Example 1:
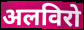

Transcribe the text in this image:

अलविरो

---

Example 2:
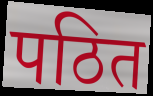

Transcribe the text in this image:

पठित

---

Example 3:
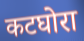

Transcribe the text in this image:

कटघोरा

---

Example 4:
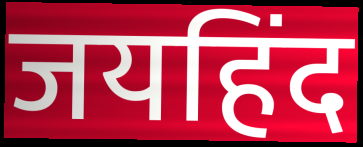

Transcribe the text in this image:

जयहिंद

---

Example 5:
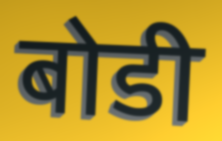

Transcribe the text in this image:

बोडी